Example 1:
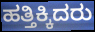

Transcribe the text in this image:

ಹತ್ತಿಕ್ಕಿದರು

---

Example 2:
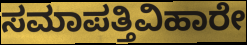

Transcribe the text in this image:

ಸಮಾಪತ್ತಿವಿಹಾರೇ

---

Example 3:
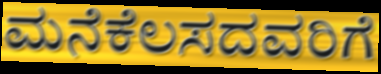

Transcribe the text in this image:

ಮನೆಕೆಲಸದವರಿಗೆ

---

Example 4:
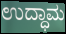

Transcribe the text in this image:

ಉದ್ಧಾಮ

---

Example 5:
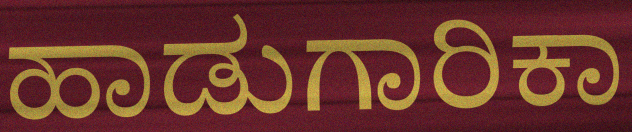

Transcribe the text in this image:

ಹಾಡುಗಾರಿಕಾ